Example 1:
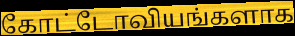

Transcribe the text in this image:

கோட்டோவியங்களாக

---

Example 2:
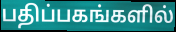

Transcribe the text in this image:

பதிப்பகங்களில்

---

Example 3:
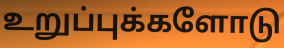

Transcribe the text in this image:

உறுப்புக்களோடு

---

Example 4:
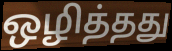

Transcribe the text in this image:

ஒழித்தது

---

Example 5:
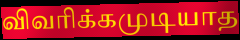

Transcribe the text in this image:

விவரிக்கமுடியாத